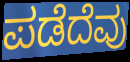
ಪಡೆದೆವು